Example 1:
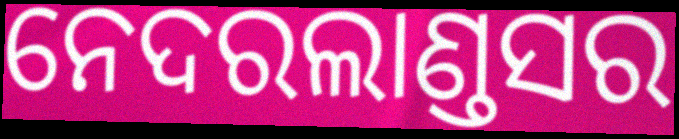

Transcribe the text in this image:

ନେଦରଲାଣ୍ଡସର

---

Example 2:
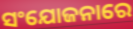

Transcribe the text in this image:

ସଂଯୋଜନାରେ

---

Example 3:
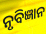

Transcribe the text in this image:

ନୃବିଜ୍ଞାନ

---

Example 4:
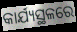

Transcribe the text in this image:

କାର୍ଯ୍ୟସ୍ଥଳରେ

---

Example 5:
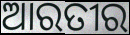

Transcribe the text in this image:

ଆରତୀର